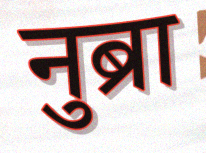
नुब्रा